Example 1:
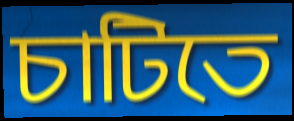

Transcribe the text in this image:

চাটিতে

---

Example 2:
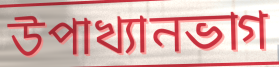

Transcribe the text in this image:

উপাখ্যানভাগ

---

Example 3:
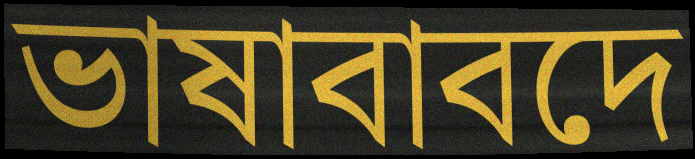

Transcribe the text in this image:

ভাষাবাবদে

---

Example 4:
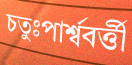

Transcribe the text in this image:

চতুঃপার্শ্ববর্ত্তী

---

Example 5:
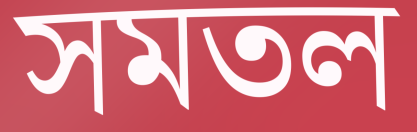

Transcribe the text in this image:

সমতল